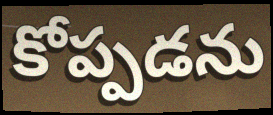
కోప్పడను